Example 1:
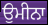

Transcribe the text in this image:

ਉਮੀਨਾ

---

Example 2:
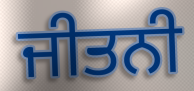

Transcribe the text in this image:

ਜੀਤਨੀ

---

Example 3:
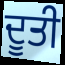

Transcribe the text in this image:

ਦੂਤੀ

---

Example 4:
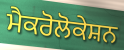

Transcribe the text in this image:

ਮੈਕਰੋਲੋਕੇਸ਼ਨ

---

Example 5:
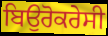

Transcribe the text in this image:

ਬਿਉਰੋਕਰੇਸੀ